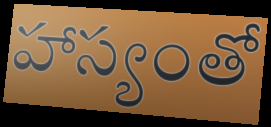
హాస్యంతో